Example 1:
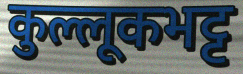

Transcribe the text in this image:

कुल्लूकभट्ट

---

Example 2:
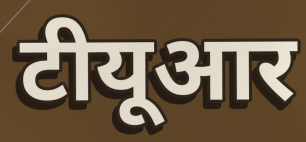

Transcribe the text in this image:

टीयूआर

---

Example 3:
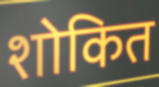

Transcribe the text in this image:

शोकित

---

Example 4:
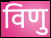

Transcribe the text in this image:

विणु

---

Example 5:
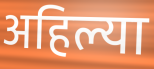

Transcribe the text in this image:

अहिल्या